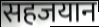
सहजयान